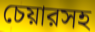
চেয়ারসহ